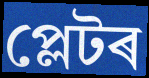
প্লেটৰ